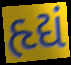
હૃદ્યં